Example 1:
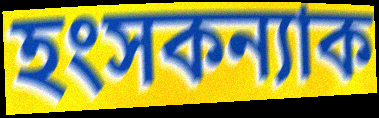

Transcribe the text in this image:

হংসকন্যাক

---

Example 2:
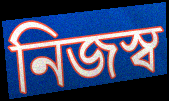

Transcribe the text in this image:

নিজস্ব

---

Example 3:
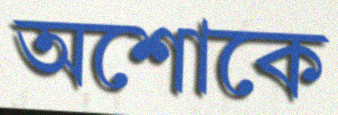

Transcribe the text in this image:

অশোকে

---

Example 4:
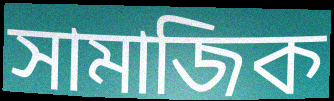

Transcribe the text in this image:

সামাজিক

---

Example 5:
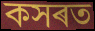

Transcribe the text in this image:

কসৰত